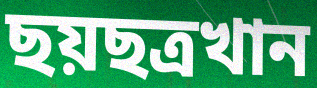
ছয়ছত্রখান